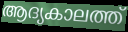
ആദ്യകാലത്ത്